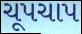
ચૂપચાપ